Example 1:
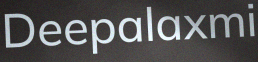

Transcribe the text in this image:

Deepalaxmi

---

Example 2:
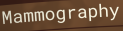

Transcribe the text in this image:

Mammography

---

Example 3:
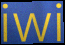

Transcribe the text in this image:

iwi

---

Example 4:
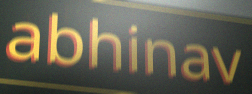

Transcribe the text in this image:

abhinav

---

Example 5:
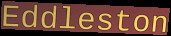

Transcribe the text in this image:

Eddleston